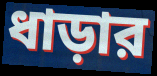
ধাড়ার